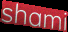
shami